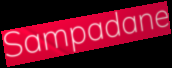
Sampadane